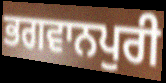
ਭਗਵਾਨਪੁਰੀ